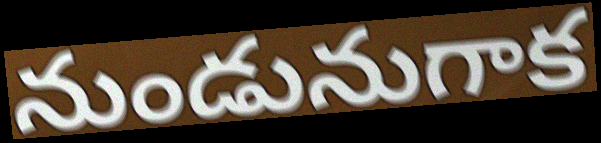
నుండునుగాక